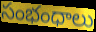
సంభంధాలు